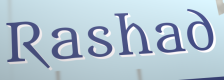
Rashad